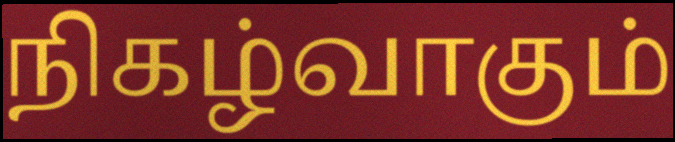
நிகழ்வாகும்